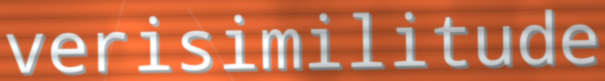
verisimilitude